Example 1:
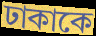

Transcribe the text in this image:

ঢাকাকে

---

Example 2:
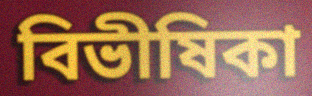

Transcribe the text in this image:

বিভীষিকা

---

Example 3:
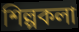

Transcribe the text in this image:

শিল্পকলা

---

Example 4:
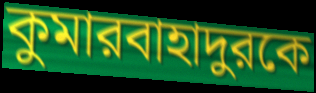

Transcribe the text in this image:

কুমারবাহাদুরকে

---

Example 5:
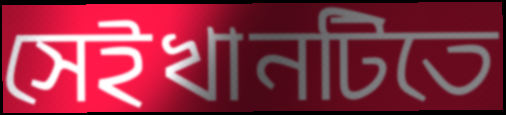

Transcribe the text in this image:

সেইখানটিতে